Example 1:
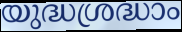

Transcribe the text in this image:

യുദ്ധശ്രദ്ധാം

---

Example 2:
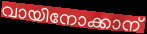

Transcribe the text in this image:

വായിനോക്കാന്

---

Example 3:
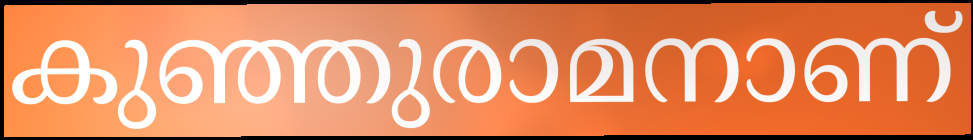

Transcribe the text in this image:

കുഞ്ഞുരാമനാണ്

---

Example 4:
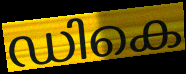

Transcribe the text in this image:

ഡികെ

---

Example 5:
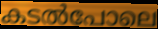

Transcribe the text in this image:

കടൽപോലെ